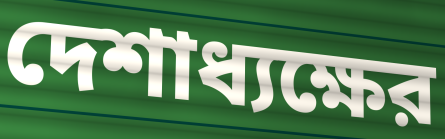
দেশাধ্যক্ষের